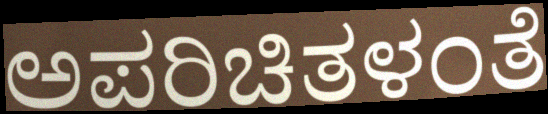
ಅಪರಿಚಿತಳಂತೆ